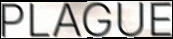
PLAGUE